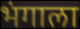
भंगाला